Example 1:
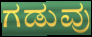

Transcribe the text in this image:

ಗಡುವು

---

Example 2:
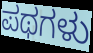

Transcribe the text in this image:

ಪಥಗಳು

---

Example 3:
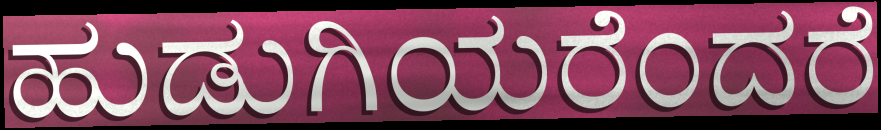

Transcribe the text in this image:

ಹುಡುಗಿಯರೆಂದರೆ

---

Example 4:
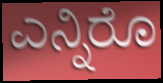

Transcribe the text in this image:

ಎನ್ನಿರೊ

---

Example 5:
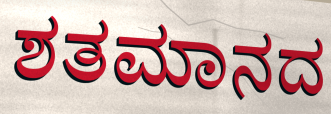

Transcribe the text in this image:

ಶತಮಾನದ